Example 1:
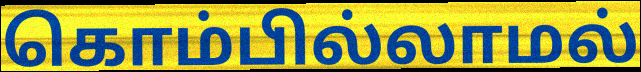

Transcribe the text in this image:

கொம்பில்லாமல்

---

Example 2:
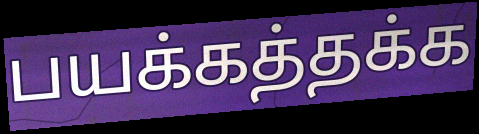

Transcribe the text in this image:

பயக்கத்தக்க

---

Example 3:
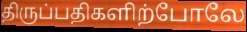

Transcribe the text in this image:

திருப்பதிகளிற்போலே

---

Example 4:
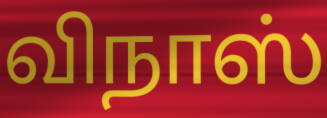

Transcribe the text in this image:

விநாஸ்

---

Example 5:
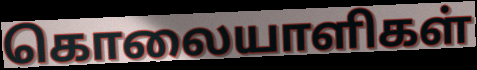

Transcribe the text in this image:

கொலையாளிகள்